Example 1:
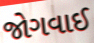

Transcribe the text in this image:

જોગવાઈ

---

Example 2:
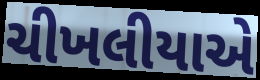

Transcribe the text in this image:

ચીખલીયાએ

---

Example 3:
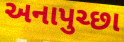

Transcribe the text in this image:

અનાપુચ્છા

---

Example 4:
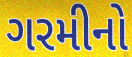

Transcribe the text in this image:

ગરમીનો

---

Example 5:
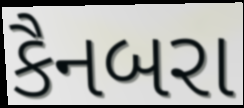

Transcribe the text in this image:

કૈનબરા